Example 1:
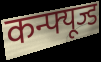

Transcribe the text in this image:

कन्फ्यूज्ड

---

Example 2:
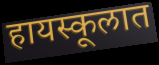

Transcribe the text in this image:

हायस्कूलात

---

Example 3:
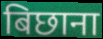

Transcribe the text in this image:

बिछाना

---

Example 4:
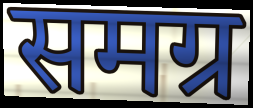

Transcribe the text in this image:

समग्र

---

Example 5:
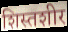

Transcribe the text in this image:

शिस्तशीर